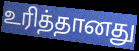
உரித்தானது